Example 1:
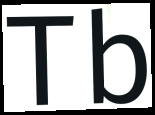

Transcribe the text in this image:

Tb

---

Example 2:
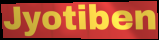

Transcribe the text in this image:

Jyotiben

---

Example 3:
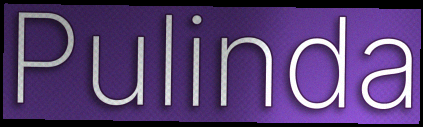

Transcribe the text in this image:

Pulinda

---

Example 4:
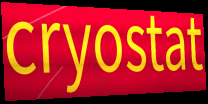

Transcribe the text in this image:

cryostat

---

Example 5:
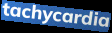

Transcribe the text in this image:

tachycardia